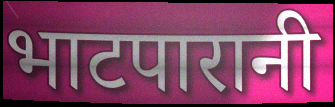
भाटपारानी